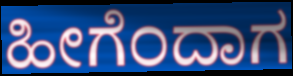
ಹೀಗೆಂದಾಗ